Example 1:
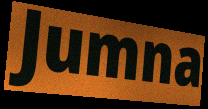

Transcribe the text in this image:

Jumna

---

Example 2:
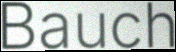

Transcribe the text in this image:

Bauch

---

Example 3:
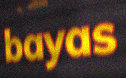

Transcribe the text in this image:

bayas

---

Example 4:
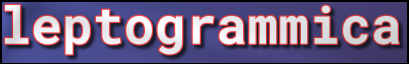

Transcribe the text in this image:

leptogrammica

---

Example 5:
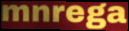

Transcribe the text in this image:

mnrega